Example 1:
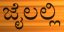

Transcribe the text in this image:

ಜೈಲಲ್ಲಿ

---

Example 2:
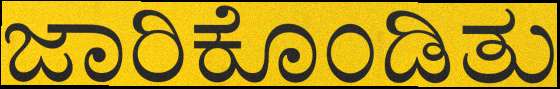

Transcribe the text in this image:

ಜಾರಿಕೊಂಡಿತು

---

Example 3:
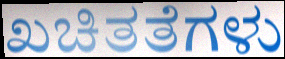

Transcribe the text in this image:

ಖಚಿತತೆಗಳು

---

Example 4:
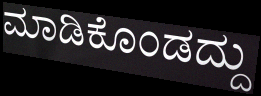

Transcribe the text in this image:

ಮಾಡಿಕೊಂಡದ್ದು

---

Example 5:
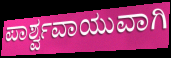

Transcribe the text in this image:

ಪಾರ್ಶ್ವವಾಯುವಾಗಿ